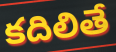
కదిలితే